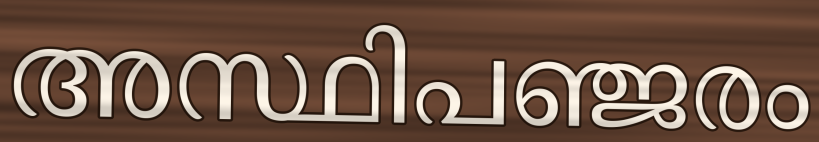
അസ്ഥിപഞ്ജരം